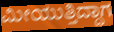
ಮೀಯುತ್ತಿದ್ದಾಗ